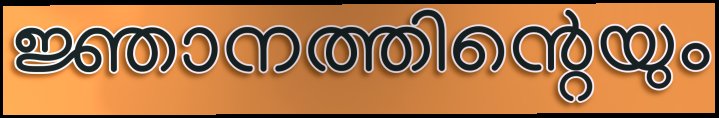
ജ്ഞാനത്തിന്റെയും